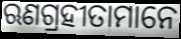
ଋଣଗ୍ରହୀତାମାନେ